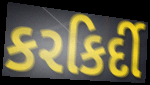
કરકિર્દી